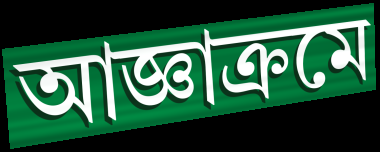
আজ্ঞাক্রমে